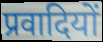
प्रवादियों